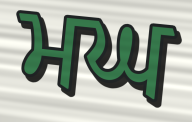
ਮਘ